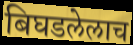
बिघडलेलाच